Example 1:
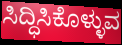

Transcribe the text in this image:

ಸಿದ್ಧಿಸಿಕೊಳ್ಳುವ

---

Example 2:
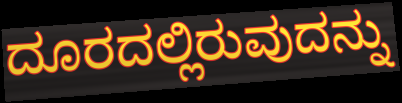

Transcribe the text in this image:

ದೂರದಲ್ಲಿರುವುದನ್ನು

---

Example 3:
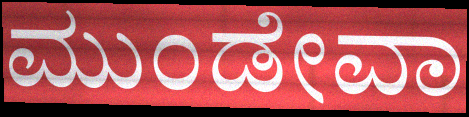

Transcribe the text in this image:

ಮುಂಡೇವಾ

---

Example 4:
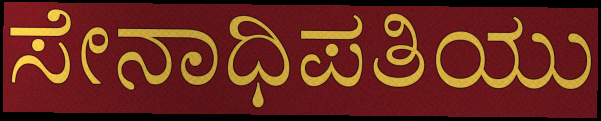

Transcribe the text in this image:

ಸೇನಾಧಿಪತಿಯು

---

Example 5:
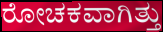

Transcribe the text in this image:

ರೋಚಕವಾಗಿತ್ತು